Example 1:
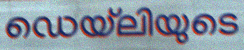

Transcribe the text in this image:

ഡെയ്‌ലിയുടെ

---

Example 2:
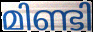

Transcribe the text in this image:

മിണ്ടി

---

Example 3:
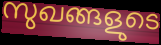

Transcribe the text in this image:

സുഖങ്ങളുടെ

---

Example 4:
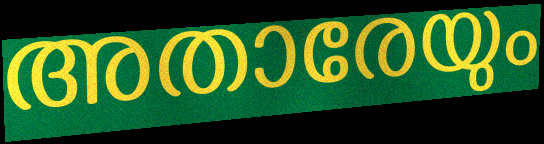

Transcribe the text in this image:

അതാരേയും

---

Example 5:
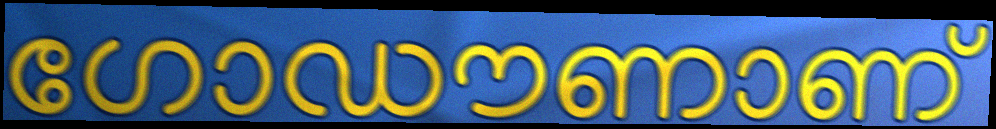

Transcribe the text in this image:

ഗോഡൗണാണ്